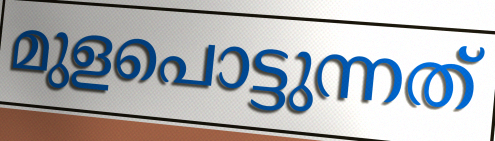
മുളപൊട്ടുന്നത്